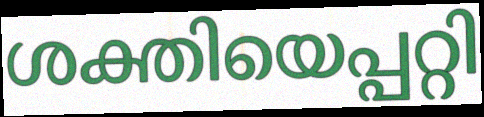
ശക്തിയെപ്പറ്റി